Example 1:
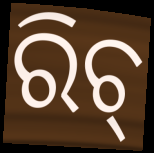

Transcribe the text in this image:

ରିଚ୍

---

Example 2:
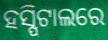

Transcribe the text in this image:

ହସ୍ପିଟାଲରେ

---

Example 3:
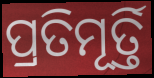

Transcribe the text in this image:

ପ୍ରତିମୂର୍ତ୍ତି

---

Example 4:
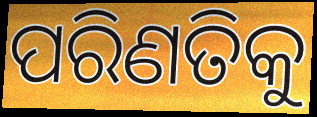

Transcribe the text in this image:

ପରିଣତିକୁ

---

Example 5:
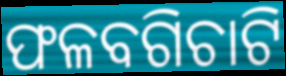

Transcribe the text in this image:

ଫଳବଗିଚାଟି